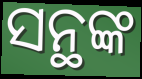
ସନ୍ଥଙ୍କ